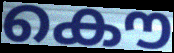
കൌ